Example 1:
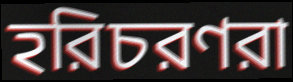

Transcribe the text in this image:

হরিচরণরা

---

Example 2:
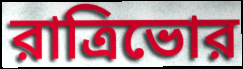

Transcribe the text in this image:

রাত্রিভোর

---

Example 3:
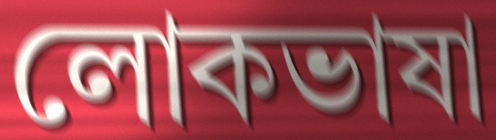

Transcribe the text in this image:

লোকভাষা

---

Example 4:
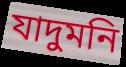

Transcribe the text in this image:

যাদুমনি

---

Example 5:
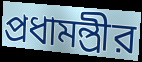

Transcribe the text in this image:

প্রধামন্ত্রীর